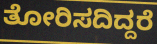
ತೋರಿಸದಿದ್ದರೆ